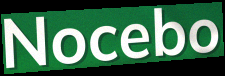
Nocebo